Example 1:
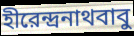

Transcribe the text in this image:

হীরেন্দ্রনাথবাবু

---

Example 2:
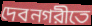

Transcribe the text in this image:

দেবনগরীতে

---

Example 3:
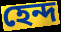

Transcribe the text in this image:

হেন্দ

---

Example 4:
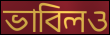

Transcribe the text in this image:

ভাবিলও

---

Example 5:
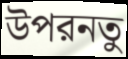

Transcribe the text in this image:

উপরনতু